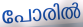
പോരിൽ